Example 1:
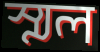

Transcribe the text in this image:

স্মল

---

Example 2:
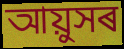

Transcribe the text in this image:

আয়ুসৰ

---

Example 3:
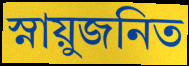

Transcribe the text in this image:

স্নায়ুজনিত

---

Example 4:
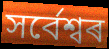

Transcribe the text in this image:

সৰ্বেশ্বৰ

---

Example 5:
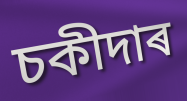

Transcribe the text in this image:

চকীদাৰ